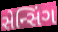
સેન્સિંગ